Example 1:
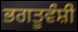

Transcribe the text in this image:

ਭਗਤੂਵੰਸ਼ੀ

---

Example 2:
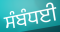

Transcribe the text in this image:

ਸੰਬੰਧਈ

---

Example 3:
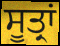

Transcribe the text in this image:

ਸੂਤ੍ਰਾਂ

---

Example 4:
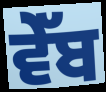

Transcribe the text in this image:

ਵੇੱਬ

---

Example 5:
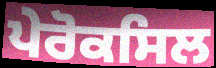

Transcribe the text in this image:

ਪੇਰੋਕਸਿਲ